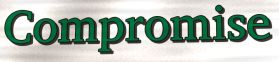
Compromise